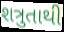
શત્રુતાથી